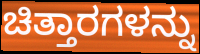
ಚಿತ್ತಾರಗಳನ್ನು